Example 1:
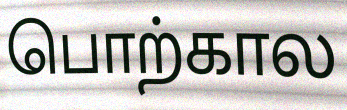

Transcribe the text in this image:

பொற்கால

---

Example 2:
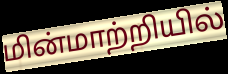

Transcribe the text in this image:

மின்மாற்றியில்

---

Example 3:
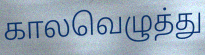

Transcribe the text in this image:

காலவெழுத்து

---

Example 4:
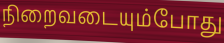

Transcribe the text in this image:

நிறைவடையும்போது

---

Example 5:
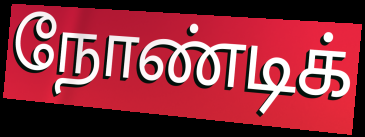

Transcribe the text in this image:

நோண்டிக்